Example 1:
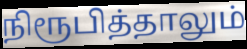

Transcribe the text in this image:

நிரூபித்தாலும்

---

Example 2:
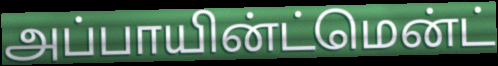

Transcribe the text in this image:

அப்பாயின்ட்மென்ட்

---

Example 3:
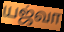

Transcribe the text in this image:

யஜ்வா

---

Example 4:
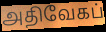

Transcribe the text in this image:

அதிவேகப்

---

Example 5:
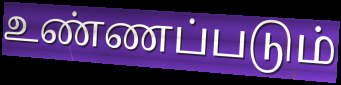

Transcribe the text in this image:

உண்ணப்படும்